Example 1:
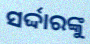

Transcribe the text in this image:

ସର୍ଦ୍ଦାରଙ୍କୁ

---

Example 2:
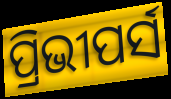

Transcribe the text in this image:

ପ୍ରିଭୀପର୍ସ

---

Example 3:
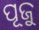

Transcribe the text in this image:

ପୂଜୁ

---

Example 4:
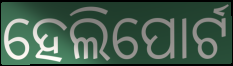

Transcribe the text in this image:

ହେଲିପୋର୍ଟ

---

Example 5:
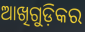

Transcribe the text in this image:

ଆଖିଗୁଡ଼ିକର